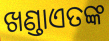
ଖଣ୍ଡାଏତଙ୍କ